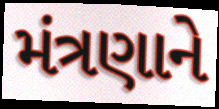
મંત્રણાને